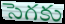
సెగకు